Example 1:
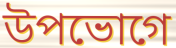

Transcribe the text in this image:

উপভোগে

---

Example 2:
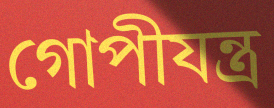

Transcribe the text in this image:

গোপীযন্ত্র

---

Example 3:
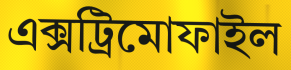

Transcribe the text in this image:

এক্সট্রিমোফাইল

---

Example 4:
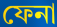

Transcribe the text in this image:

ফেনা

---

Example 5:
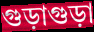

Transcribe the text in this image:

গুড়াগুড়া